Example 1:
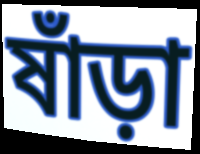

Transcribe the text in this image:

ষাঁড়া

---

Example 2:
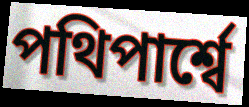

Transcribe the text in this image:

পথিপার্শ্বে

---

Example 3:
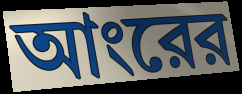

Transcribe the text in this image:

আংরের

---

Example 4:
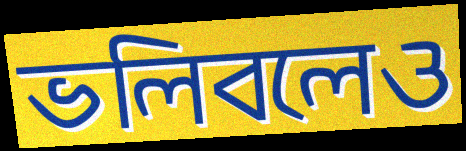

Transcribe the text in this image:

ভলিবলেও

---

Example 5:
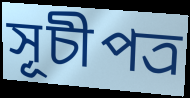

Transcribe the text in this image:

সূচীপত্র